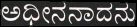
ಅಧೀನನಾದನು